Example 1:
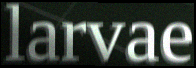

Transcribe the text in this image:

larvae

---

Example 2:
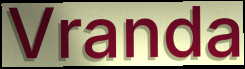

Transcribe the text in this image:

Vranda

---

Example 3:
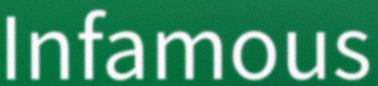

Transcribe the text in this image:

Infamous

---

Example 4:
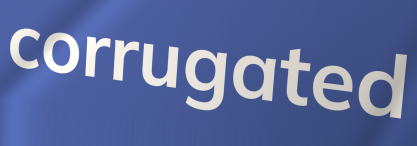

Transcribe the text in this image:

corrugated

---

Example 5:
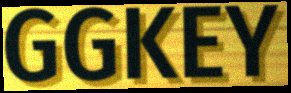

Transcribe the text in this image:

GGKEY